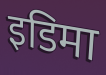
इडिमा